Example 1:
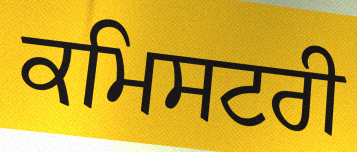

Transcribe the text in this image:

ਕਮਿਸਟਰੀ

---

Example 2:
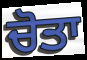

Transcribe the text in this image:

ਚੋਤਾ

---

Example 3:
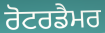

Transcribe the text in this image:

ਰੋਟਰਡੈਮਰ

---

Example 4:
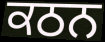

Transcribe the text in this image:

ਕਠਨ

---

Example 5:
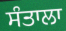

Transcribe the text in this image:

ਸੰਤਾਲਾ